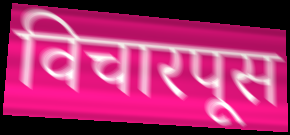
विचारपूस